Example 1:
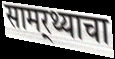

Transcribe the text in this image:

सामर्थ्याचा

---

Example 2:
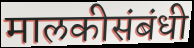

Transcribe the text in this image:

मालकीसंबंधी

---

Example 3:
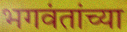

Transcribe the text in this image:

भगवंतांच्या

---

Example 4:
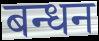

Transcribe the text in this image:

बन्धन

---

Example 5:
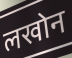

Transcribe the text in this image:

लखोन